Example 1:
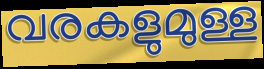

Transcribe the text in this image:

വരകളുമുള്ള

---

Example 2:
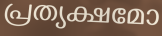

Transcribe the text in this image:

പ്രത്യക്ഷമോ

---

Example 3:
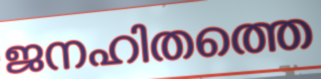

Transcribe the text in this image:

ജനഹിതത്തെ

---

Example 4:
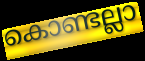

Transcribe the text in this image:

കൊണ്ടല്ലാ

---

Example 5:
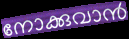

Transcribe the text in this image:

നോക്കുവാൻ